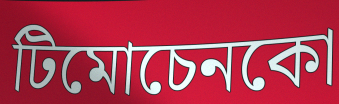
টিমোচেনকো